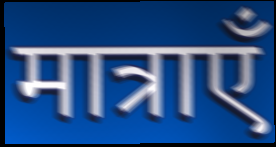
मात्राएँ